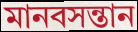
মানবসন্তান